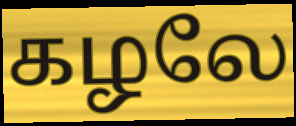
கழலே